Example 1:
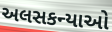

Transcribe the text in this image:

અલસકન્યાઓ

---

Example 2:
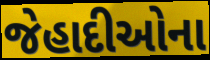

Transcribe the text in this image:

જેહાદીઓના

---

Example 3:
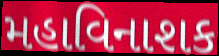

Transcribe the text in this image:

મહાવિનાશક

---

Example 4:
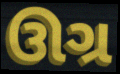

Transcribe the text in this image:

ઊગ્ર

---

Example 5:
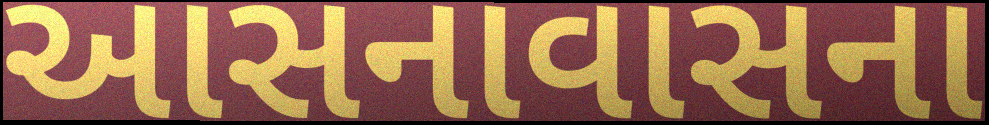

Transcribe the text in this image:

આસનાવાસના